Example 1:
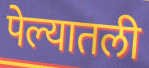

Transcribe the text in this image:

पेल्यातली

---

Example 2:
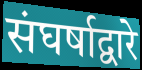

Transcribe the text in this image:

संघर्षाद्वारे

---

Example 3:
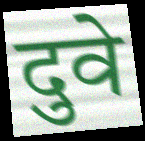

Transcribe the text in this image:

दुवे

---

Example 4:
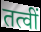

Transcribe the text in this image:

तत्वीं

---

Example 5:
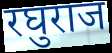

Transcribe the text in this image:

रघुराज